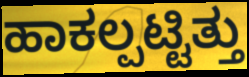
ಹಾಕಲ್ಪಟ್ಟಿತ್ತು